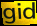
gid